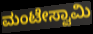
ಮಂಟೇಸ್ವಾಮಿ